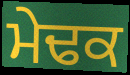
ਮੇਢਕ